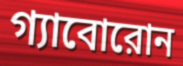
গ্যাবোরোন